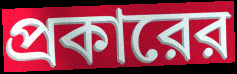
প্রকারের